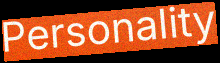
Personality